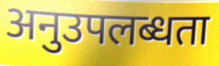
अनुउपलब्धता